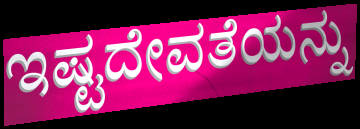
ಇಷ್ಟದೇವತೆಯನ್ನು